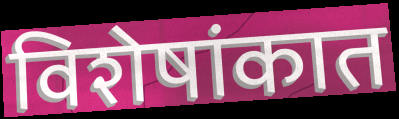
विशेषांकात